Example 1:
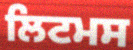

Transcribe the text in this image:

ਲਿਟਮਸ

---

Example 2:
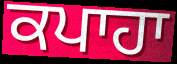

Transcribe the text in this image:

ਕਪਾਹਾ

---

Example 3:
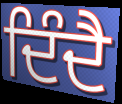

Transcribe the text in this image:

ਦਿੰਦੈ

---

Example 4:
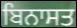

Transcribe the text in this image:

ਬਿਨਾਸਤ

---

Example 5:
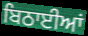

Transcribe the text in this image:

ਬਿਠਾਈਆਂ